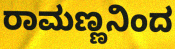
ರಾಮಣ್ಣನಿಂದ